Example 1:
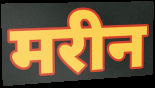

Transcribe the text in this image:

मरीन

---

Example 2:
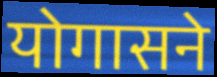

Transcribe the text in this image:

योगासने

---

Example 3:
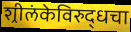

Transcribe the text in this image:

श्रीलंकेविरुद्धचा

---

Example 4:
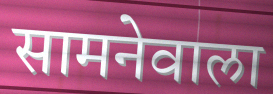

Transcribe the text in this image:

सामनेवाला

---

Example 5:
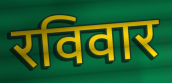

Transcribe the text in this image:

रविवार